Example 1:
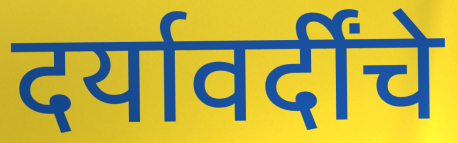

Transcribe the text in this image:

दर्यावर्दींचे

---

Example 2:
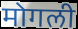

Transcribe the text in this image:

मोगली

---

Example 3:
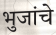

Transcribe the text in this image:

भुजांचे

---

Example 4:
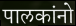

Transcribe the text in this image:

पालकांनो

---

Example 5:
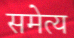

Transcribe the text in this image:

समेत्य